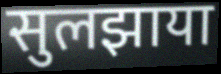
सुलझाया